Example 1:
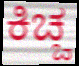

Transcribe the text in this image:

ಕಿಚ್ಚ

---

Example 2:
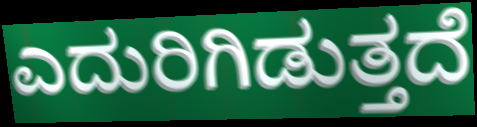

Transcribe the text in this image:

ಎದುರಿಗಿಡುತ್ತದೆ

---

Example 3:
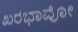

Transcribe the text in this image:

ಖರಭಾವೋ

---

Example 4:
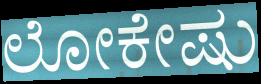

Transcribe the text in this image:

ಲೋಕೇಷು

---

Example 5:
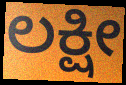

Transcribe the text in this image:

ಲಕ್ಷೀ